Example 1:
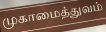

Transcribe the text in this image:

முகாமைத்துவம்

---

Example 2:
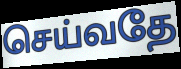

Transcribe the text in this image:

செய்வதே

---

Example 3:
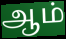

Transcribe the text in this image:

ஆம்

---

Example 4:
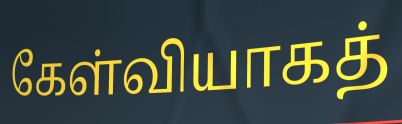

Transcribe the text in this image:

கேள்வியாகத்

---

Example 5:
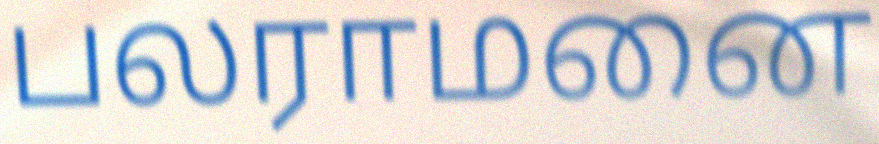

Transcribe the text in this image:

பலராமனை